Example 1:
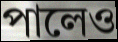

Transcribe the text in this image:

পালেও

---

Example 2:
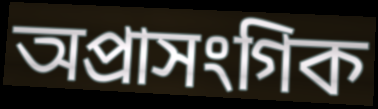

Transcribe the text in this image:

অপ্ৰাসংগিক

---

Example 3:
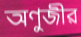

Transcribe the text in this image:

অণুজীৱ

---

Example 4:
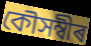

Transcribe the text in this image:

কৌসম্বীৰ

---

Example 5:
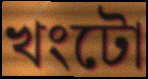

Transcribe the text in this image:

খংটো